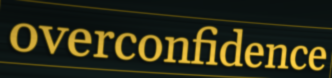
overconfidence